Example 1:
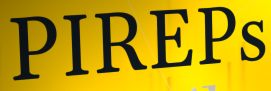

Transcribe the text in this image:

PIREPs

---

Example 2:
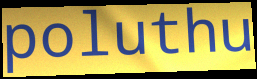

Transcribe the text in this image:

poluthu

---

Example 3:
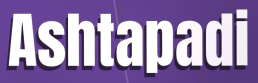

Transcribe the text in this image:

Ashtapadi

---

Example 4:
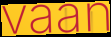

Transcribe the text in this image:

vaan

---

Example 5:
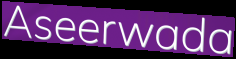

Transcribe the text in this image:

Aseerwada